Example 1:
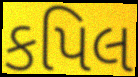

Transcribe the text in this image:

કપિલ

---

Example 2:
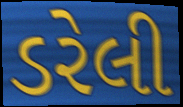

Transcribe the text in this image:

ડરેલી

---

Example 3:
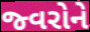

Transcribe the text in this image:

જ્વરોને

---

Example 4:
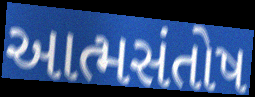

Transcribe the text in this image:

આત્મસંતોષ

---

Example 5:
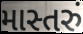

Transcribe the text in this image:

માસ્તરું